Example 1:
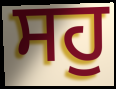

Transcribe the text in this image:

ਸਹੁ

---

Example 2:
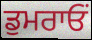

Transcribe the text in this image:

ਡੁਮਰਾਓਂ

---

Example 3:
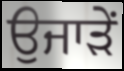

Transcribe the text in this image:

ਉਜਾੜੇਂ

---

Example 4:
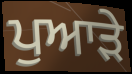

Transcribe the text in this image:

ਪੁਆੜੇ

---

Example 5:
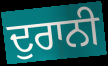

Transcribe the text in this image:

ਦੁਰਾਨੀ